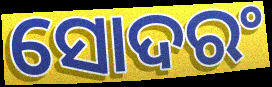
ସୋଦରଂ